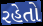
રહેતો